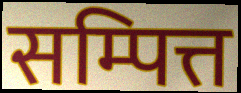
सम्पित्त